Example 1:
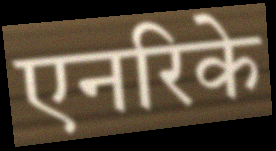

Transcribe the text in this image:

एनरिके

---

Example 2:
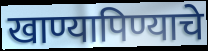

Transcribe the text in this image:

खाण्यापिण्याचे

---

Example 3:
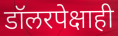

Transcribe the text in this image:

डॉलरपेक्षाही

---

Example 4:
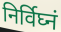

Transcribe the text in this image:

निर्विघ्नं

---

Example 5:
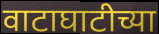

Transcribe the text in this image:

वाटाघाटीच्या